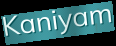
Kaniyam